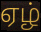
ஏழ்